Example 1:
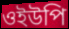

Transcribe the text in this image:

ওইউপি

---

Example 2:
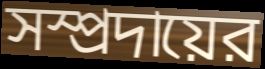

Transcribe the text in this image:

সস্প্রদায়ের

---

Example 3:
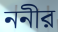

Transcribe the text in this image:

ননীর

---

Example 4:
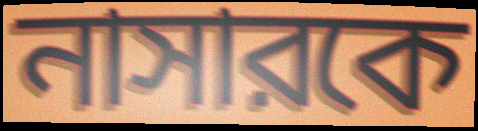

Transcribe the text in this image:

নাসারকে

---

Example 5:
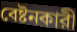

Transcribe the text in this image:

বেষ্টনকারী